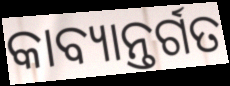
କାବ୍ଯାନ୍ତର୍ଗତ